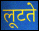
लूटते